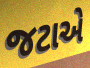
જટાએ